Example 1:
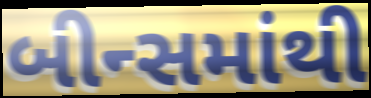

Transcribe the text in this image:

બીન્સમાંથી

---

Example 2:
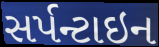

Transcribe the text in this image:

સર્પન્ટાઇન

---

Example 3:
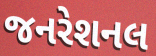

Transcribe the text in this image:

જનરેશનલ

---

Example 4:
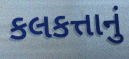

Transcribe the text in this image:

કલકત્તાનું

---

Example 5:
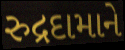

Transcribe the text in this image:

રુદ્રદામાને